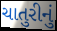
ચાતુરીનું